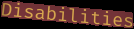
Disabilities